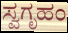
ಸ್ವಗೃಹಂ